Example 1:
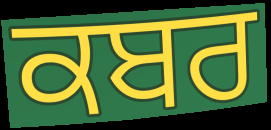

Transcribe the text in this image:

ਕਬਰ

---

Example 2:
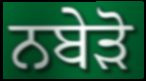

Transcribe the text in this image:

ਨਬੇੜੋ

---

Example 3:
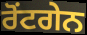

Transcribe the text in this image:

ਰੋਂਟਗੇਨ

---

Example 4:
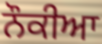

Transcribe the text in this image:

ਨੌਕੀਆ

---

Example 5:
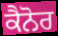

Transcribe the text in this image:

ਕੈਨੋਰ